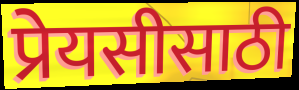
प्रेयसीसाठी